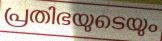
പ്രതിഭയുടെയും